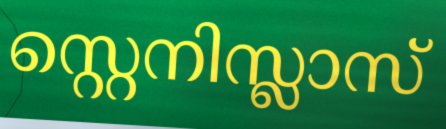
സ്റ്റെനിസ്ലാസ്